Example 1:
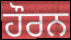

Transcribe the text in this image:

ਹੌਰਨ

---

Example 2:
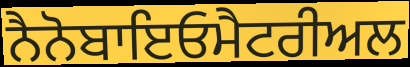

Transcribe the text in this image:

ਨੈਨੋਬਾਇਓਮੈਟਰੀਅਲ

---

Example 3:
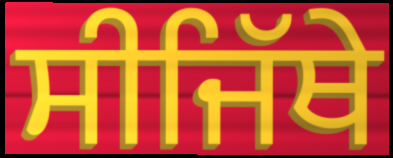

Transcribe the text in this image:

ਸੀਜਿੱਥੇ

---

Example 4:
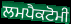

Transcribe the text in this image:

ਲਮਪੈਕਟੋਮੀ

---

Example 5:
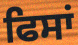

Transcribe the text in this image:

ਫਿਸਾਂ